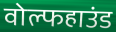
वोल्फहाउंड